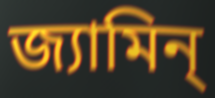
জ্যামিন্